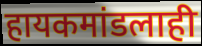
हायकमांडलाही